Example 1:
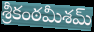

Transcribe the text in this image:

శ్రీకంఠమీశమ్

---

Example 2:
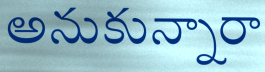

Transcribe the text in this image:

అనుకున్నారా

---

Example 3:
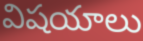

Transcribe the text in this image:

విషయాలు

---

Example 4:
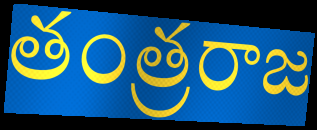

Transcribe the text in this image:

తంత్రరాజ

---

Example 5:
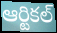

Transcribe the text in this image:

ఆర్టికల్